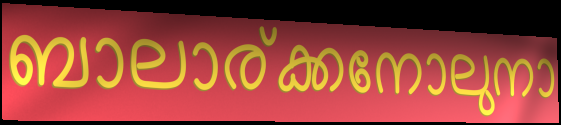
ബാലാര്ക്കനോലുനാ